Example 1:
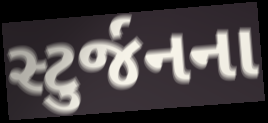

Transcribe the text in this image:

સ્ટુર્જનના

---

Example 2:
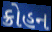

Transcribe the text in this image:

ક્રોહન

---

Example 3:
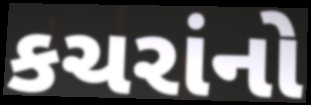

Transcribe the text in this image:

કચરાંનો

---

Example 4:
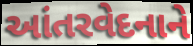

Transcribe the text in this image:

આંતરવેદનાને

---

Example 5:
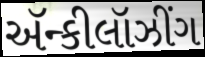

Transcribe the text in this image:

ઍન્કીલૉઝીંગ